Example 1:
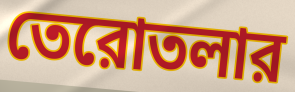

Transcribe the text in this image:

তেরোতলার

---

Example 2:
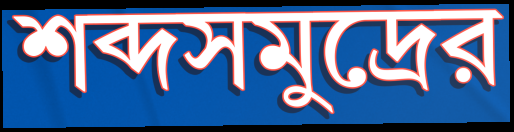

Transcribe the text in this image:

শব্দসমুদ্রের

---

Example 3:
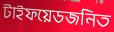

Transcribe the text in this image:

টাইফয়েডজনিত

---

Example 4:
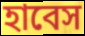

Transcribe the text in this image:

হাবেস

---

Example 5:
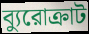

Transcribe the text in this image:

ব্যুরোক্রাট